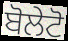
ਬੋਲੇਟੋ